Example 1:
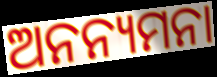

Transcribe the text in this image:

ଅନନ୍ୟମନା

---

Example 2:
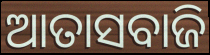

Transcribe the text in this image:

ଆତାସବାଜି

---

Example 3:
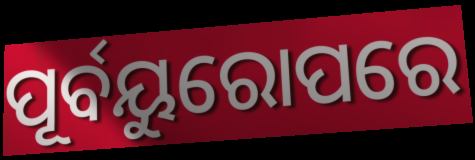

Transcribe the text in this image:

ପୂର୍ବୟୁରୋପରେ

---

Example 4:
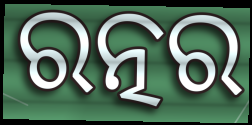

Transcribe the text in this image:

ରତ୍ନର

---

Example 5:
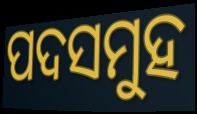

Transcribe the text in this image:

ପଦସମୁହ